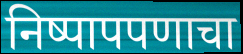
निष्पापपणाचा